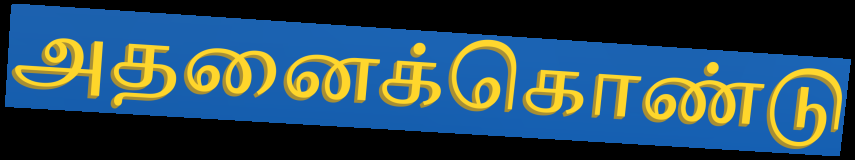
அதனைக்கொண்டு